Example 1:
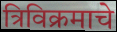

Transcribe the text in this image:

त्रिविक्रमाचे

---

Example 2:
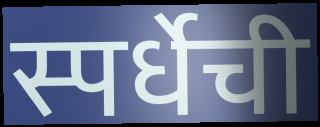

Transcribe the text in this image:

स्पर्धेची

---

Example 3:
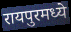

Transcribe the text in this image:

रायपुरमध्ये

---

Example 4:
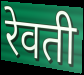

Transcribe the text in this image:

रेवती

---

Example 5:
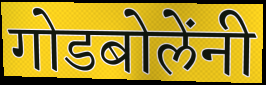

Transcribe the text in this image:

गोडबोलेंनी